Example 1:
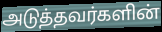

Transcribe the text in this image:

அடுத்தவர்களின்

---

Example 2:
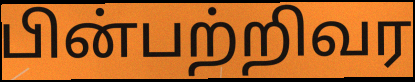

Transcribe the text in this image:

பின்பற்றிவர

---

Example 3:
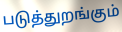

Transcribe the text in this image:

படுத்துறங்கும்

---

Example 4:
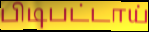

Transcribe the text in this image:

பிடிபட்டாய்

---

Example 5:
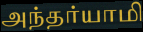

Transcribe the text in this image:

அந்தர்யாமி